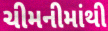
ચીમનીમાંથી